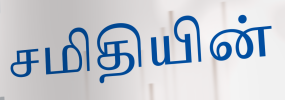
சமிதியின்